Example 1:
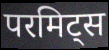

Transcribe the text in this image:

परमिट्स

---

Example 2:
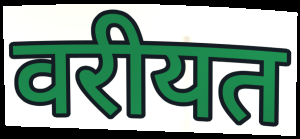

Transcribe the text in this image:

वरीयत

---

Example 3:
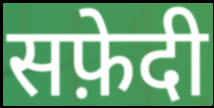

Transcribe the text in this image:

सफ़ेदी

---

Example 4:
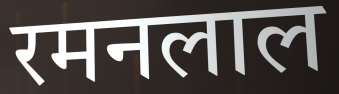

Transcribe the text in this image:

रमनलाल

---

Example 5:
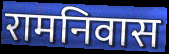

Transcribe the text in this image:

रामनिवास